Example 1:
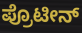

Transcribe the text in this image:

ಪ್ರೊಟೀನ್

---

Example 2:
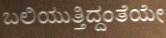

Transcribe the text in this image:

ಬಲಿಯುತ್ತಿದ್ದಂತೆಯೇ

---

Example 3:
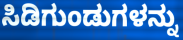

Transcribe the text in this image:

ಸಿಡಿಗುಂಡುಗಳನ್ನು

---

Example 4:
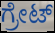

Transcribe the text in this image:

ಗ್ರೇಟ್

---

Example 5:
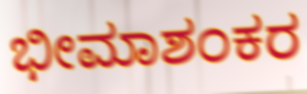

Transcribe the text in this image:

ಭೀಮಾಶಂಕರ